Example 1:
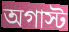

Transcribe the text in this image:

অগাস্ট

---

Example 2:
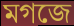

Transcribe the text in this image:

মগজে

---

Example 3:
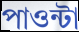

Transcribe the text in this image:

পাওন্টা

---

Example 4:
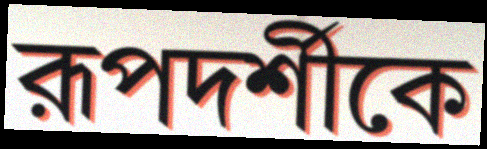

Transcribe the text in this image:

রূপদর্শীকে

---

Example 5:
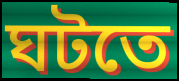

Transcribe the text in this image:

ঘটতে